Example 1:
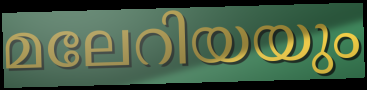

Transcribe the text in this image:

മലേറിയയും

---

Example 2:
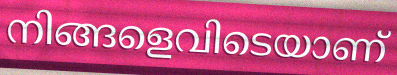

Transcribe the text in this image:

നിങ്ങളെവിടെയാണ്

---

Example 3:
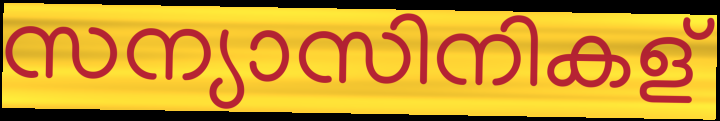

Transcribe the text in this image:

സന്യാസിനികള്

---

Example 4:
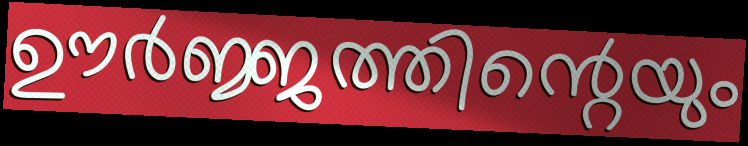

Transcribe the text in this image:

ഊർജ്ജത്തിന്റെയും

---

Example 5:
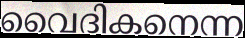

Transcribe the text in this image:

വൈദികനെന്ന